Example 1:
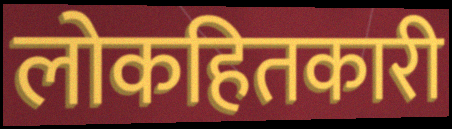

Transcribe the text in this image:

लोकहितकारी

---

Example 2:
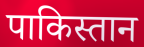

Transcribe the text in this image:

पाकिस्तान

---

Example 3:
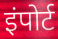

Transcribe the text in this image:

इंपोर्ट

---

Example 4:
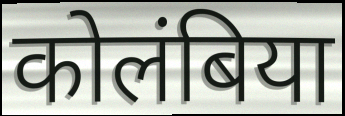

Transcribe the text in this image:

कोलंबिया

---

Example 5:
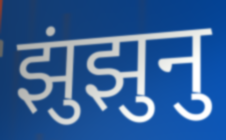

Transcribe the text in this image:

झुंझुनु